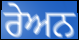
ਰੇਅਨ